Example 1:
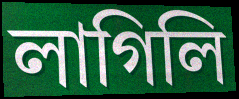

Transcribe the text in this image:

লাগিলি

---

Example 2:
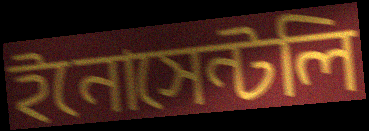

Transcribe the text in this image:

ইনোসেন্টলি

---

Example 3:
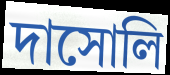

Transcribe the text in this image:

দাসোলি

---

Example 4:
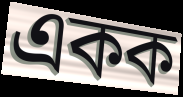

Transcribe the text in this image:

একক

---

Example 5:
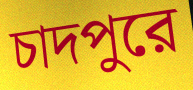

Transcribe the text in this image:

চাদপুরে